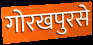
गोरखपुरसे